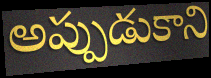
అప్పుడుకాని